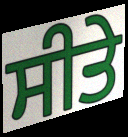
ਸੀਤੇ